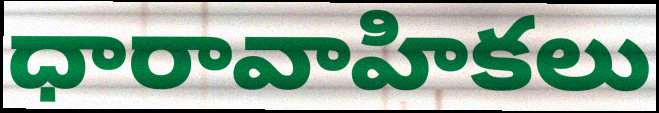
ధారావాహికలు